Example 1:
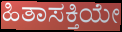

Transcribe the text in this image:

ಹಿತಾಸಕ್ತಿಯೇ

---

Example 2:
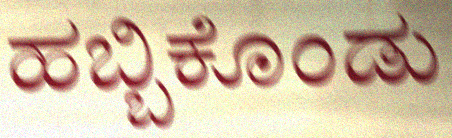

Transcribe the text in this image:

ಹಬ್ಬಿಕೊಂಡು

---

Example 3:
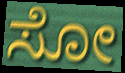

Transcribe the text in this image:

ಸೋ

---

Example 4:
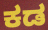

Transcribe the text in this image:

ಕಡ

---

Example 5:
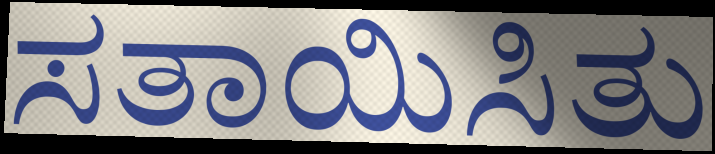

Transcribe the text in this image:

ಸತಾಯಿಸಿತು